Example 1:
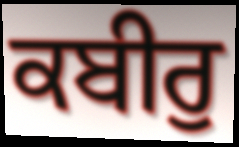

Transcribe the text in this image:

ਕਬੀਰੁ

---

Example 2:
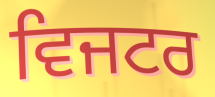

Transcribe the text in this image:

ਵਿਜਟਰ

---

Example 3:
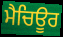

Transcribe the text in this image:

ਮੈਚਿਊਰ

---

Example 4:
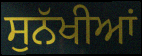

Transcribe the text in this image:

ਸੁਨੱਖੀਆਂ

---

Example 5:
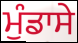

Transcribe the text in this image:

ਮੁੰਡਾਸੇ